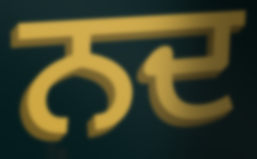
ਨਦ